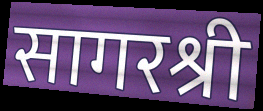
सागरश्री